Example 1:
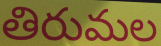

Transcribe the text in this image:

తిరుమల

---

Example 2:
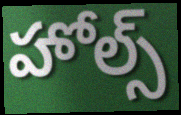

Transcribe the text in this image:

హోల్స్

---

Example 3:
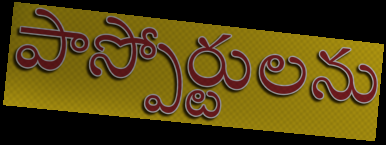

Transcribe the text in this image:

పాస్పోర్టులను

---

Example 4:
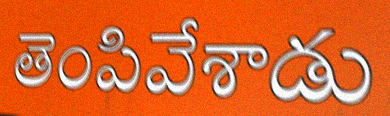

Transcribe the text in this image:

తెంపివేశాడు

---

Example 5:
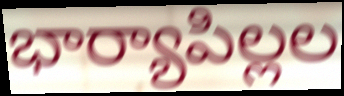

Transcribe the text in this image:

భార్యాపిల్లల